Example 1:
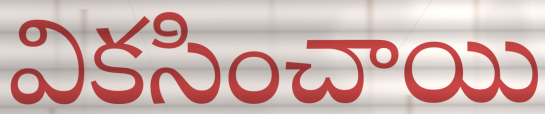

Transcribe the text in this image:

వికసించాయి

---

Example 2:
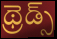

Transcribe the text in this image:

థ్రెడ్స్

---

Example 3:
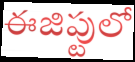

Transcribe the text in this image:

ఈజిప్టులో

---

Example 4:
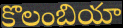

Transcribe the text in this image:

కొలంబియా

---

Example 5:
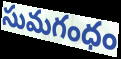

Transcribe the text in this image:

సుమగంధం